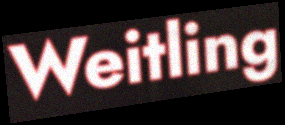
Weitling